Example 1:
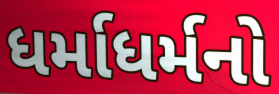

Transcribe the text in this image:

ધર્માધર્મનો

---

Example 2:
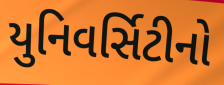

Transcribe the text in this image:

યુનિવર્સિટીનો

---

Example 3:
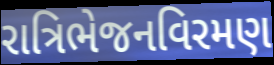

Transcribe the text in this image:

રાત્રિભેજનવિરમણ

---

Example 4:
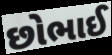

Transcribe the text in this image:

છોભાઈ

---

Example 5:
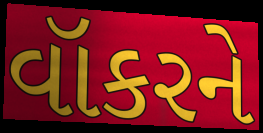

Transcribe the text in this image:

વૉકરને